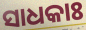
ସାଧକାଃ